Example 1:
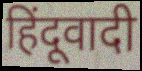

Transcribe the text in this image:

हिंदूवादी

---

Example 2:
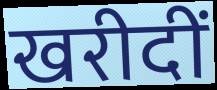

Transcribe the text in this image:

खरीदीं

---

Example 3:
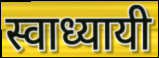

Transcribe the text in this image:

स्वाध्यायी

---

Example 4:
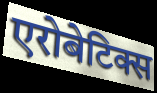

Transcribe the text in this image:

एरोबेटिक्स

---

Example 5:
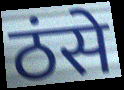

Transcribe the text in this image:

ठंसे